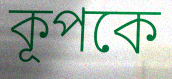
কূপকে